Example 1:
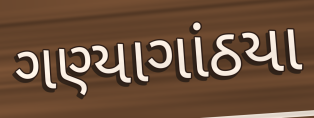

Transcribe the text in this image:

ગણ્યાગાંઠયા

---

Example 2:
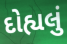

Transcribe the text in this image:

દોહ્યલું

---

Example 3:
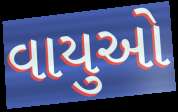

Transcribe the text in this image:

વાયુઓ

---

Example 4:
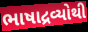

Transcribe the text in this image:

ભાષાદ્રવ્યોથી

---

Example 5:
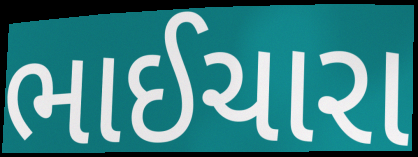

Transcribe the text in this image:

ભાઈચારા